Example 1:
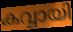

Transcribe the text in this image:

കവ്വായി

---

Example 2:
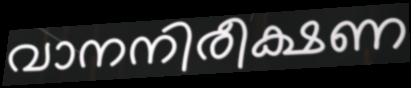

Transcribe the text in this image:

വാനനിരീക്ഷണ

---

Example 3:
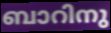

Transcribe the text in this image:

ബാറിനു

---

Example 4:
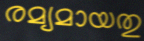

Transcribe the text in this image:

രമ്യമായതു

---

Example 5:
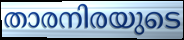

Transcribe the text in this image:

താരനിരയുടെ